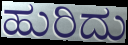
ಹುರಿದು